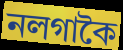
নলগাকৈ